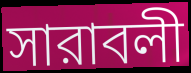
সারাবলী